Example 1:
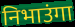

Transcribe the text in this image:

निभाउंगा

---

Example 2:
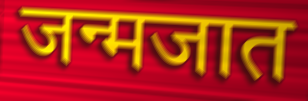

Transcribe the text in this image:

जन्मजात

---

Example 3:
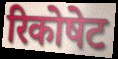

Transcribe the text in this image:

रिकोषेट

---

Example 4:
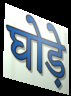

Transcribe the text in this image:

घोड़े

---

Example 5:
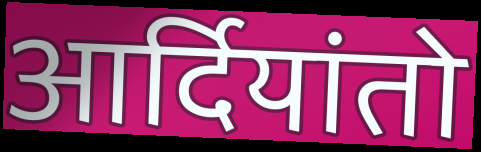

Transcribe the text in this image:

आर्दियांतो